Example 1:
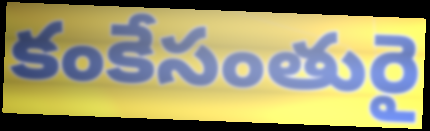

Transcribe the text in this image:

కంకేసంతురై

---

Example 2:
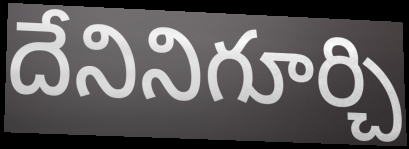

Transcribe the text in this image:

దేనినిగూర్చి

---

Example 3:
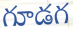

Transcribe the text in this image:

గూడగ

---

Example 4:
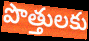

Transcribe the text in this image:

పొత్తులకు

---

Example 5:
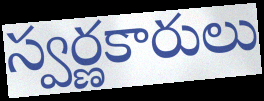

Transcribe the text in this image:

స్వర్ణకారులు